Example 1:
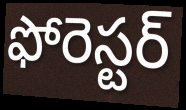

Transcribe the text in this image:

ఫోరెస్టర్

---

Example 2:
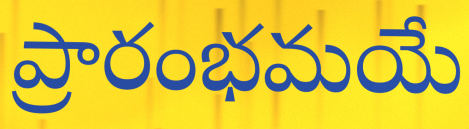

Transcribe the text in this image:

ప్రారంభమయే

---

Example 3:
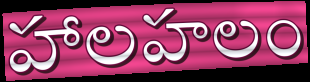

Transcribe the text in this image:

హాలహలం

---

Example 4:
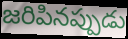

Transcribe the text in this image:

జరిపినప్పుడు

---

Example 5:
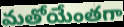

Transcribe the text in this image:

మతోయేంతగా